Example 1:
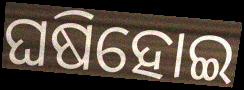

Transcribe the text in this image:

ଘଷିହୋଇ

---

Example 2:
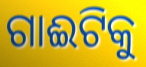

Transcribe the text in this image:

ଗାଈଟିକୁ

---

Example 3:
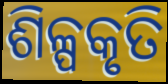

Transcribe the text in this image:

ଶିଳ୍ପକୃତି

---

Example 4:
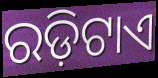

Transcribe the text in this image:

ରଡ଼ିଟାଏ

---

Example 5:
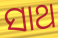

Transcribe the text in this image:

ସାଥ